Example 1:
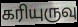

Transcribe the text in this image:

கரியுருவு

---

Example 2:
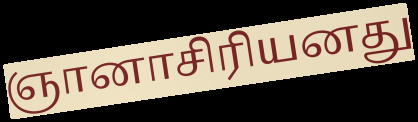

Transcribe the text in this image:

ஞானாசிரியனது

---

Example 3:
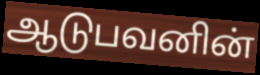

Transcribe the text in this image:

ஆடுபவனின்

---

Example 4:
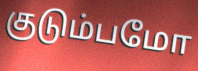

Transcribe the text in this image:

குடும்பமோ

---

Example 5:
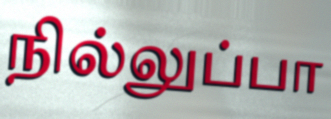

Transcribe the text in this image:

நில்லுப்பா